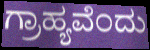
ಗ್ರಾಹ್ಯವೆಂದು